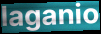
laganio